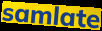
samlate